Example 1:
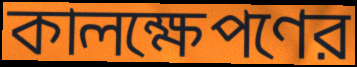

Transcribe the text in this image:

কালক্ষেপণের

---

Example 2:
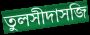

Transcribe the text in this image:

তুলসীদাসজি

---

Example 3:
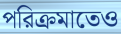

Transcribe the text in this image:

পরিক্রমাতেও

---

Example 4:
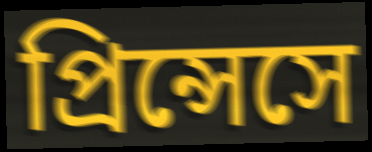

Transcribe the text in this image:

প্রিন্সেসে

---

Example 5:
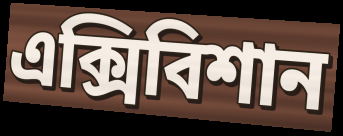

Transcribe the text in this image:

এক্সিবিশান